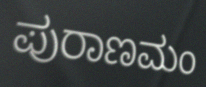
ಪುರಾಣಮಂ